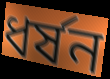
ধর্ষন